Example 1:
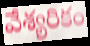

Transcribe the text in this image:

వేశ్యరికం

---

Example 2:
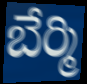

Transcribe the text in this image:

బేర్మి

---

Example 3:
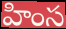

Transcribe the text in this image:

హింస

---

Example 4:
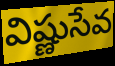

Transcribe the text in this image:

విష్ణుసేవ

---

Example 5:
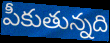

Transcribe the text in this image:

పీకుతున్నది